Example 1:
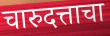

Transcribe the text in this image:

चारुदत्ताचा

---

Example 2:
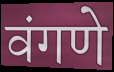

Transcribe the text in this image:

वंगणे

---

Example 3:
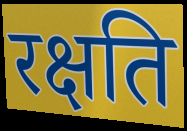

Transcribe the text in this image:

रक्षति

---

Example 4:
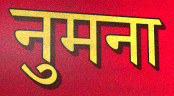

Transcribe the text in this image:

नुमना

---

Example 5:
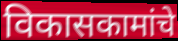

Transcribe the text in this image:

विकासकामांचे